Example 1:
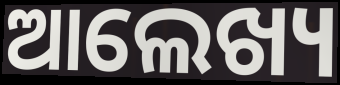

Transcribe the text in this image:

ଆଲେଖ୍ୟ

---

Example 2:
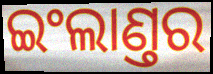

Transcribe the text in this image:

ଇଂଲାଣ୍ତର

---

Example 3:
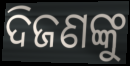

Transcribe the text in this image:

ଦିଜଣଙ୍କୁ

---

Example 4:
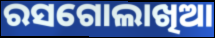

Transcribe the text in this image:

ରସଗୋଲାଖିଆ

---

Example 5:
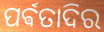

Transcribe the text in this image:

ପର୍ଵତାଦିର